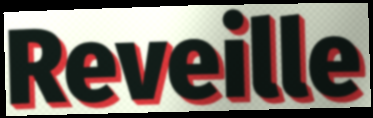
Reveille